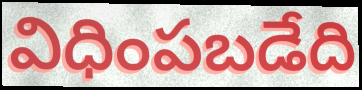
విధింపబడేది